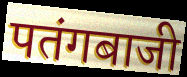
पतंगबाजी